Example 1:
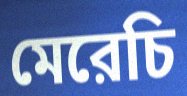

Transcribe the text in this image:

মেরেচি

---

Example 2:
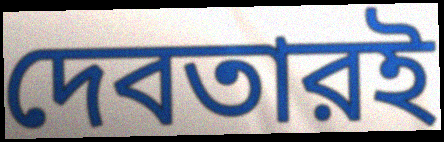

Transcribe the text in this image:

দেবতারই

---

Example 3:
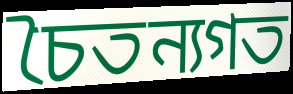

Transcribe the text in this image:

চৈতন্যগত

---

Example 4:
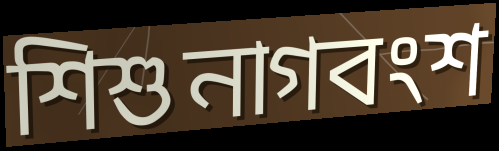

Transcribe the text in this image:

শিশুনাগবংশ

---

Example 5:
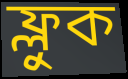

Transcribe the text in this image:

ফ্লুক